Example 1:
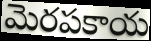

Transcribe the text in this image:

మెరపకాయ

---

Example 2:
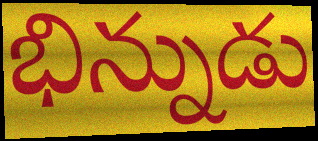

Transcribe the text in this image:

భిన్నుడు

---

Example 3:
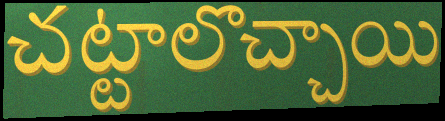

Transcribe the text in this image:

చట్టాలొచ్చాయి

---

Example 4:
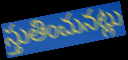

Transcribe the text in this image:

స్తుతించునట్లు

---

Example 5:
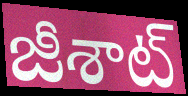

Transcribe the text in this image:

జీశాట్